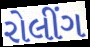
રોલીંગ